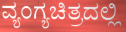
ವ್ಯಂಗ್ಯಚಿತ್ರದಲ್ಲಿ